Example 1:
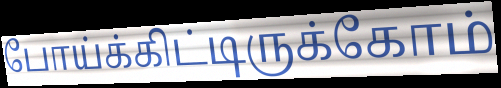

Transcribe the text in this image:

போய்க்கிட்டிருக்கோம்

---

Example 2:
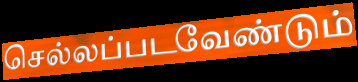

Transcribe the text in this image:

செல்லப்படவேண்டும்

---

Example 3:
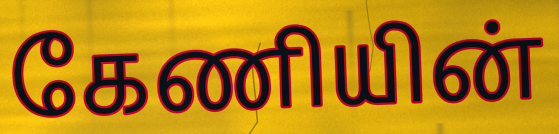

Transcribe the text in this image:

கேணியின்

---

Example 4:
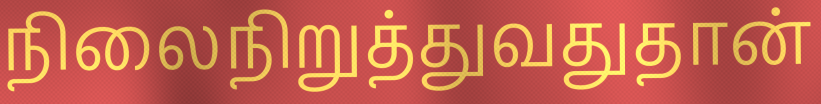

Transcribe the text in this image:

நிலைநிறுத்துவதுதான்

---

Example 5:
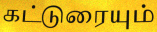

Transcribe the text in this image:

கட்டுரையும்